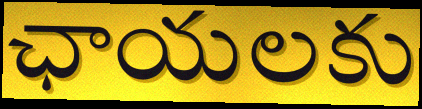
ఛాయలకు